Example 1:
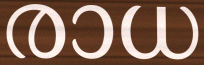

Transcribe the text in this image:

രാധ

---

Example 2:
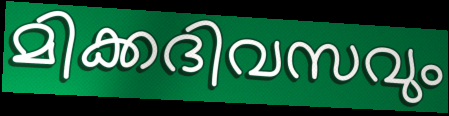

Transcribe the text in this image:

മിക്കദിവസവും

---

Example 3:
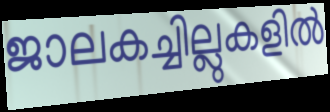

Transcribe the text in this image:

ജാലകച്ചില്ലുകളിൽ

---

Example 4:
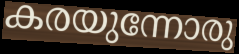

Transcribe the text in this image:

കരയുന്നോരു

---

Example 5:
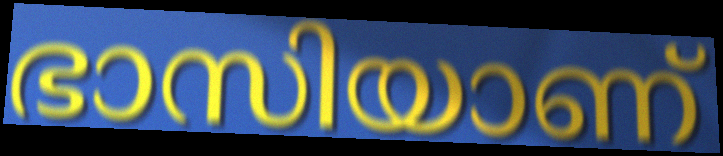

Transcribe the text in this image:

ഭാസിയാണ്